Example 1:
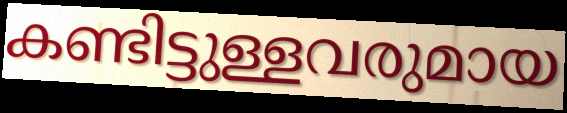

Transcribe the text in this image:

കണ്ടിട്ടുള്ളവരുമായ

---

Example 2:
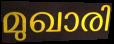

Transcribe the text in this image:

മുഖാരി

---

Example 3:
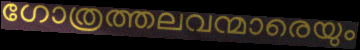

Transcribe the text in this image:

ഗോത്രത്തലവന്മാരെയും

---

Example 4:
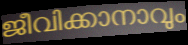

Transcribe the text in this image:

ജീവിക്കാനാവും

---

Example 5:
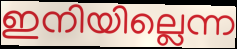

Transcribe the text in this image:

ഇനിയില്ലെന്ന